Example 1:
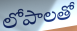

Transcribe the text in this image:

లోపాలతో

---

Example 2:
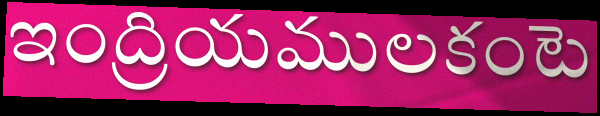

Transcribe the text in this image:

ఇంద్రియములకంటె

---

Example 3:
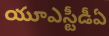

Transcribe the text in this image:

యూఎస్టీడీఏ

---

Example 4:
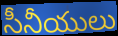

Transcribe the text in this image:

సీనీయులు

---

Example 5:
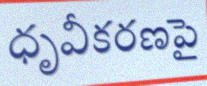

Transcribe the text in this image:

ధృవీకరణపై